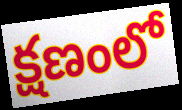
క్షణంలో